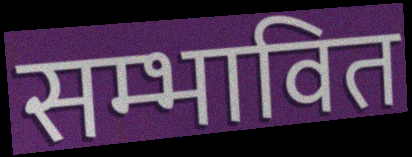
सम्भावित